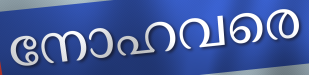
നോഹവരെ